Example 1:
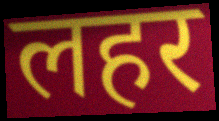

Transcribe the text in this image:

लहर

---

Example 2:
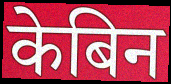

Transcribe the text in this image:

केबिन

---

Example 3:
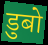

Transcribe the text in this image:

डुबो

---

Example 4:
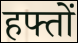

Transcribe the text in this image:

हफ्तों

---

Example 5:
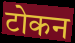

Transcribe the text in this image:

टोकन